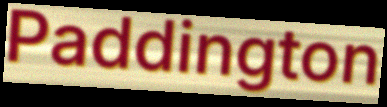
Paddington